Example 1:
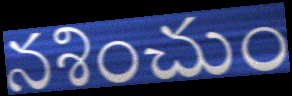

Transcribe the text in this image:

నశించుం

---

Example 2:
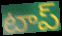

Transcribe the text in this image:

టాప్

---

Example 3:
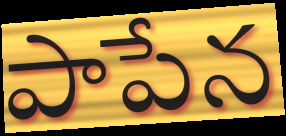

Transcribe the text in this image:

పాపేన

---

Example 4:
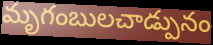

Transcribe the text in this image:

మృగంబులచాడ్పునం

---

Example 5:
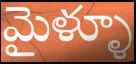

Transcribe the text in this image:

మైళ్ళూ